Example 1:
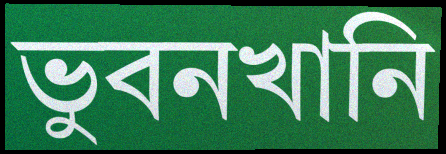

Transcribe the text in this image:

ভুবনখানি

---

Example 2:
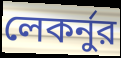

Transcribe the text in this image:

লেকর্নুর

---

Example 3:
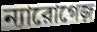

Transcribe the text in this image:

ন্যারোগেজ়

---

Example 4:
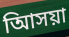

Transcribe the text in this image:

আিসয়া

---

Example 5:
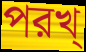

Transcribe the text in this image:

পরখ্